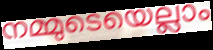
നമ്മുടെയെല്ലാം